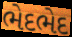
ભેદભેદ